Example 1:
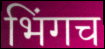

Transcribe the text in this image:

भिंगच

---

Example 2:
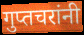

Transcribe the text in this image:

गुप्तचरांनी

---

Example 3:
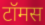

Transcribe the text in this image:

टॉमस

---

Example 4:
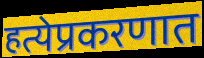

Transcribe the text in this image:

हत्येप्रकरणात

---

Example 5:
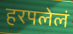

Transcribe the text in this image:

हरपलेलं